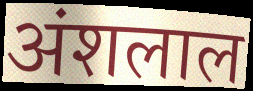
अंशलाल